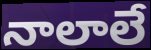
నాలాలే